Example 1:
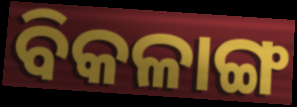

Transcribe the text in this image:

ବିକଳାଙ୍ଗ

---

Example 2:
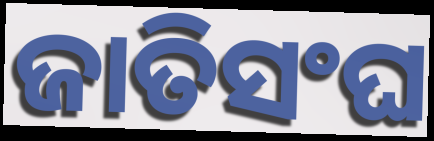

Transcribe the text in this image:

ଜାତିସଂଘ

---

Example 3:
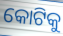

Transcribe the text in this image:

କୋଟିକୁ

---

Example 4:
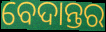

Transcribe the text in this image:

ବେଦାନ୍ତର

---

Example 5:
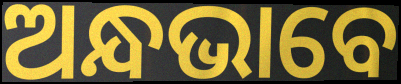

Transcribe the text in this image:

ଅନ୍ଧଭାବେ